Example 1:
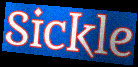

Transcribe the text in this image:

Sickle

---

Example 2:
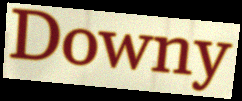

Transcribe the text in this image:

Downy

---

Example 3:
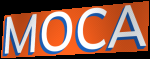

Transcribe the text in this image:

MOCA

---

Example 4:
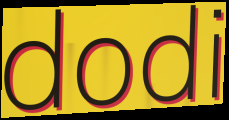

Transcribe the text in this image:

dodi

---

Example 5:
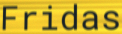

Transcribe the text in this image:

Fridas